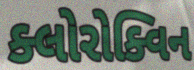
ક્લોરોક્વિન